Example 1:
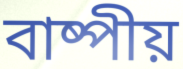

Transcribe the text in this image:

বাষ্পীয়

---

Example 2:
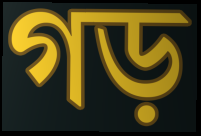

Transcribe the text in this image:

গড়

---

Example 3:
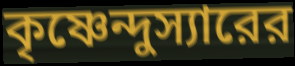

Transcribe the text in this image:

কৃষ্ণেন্দুস্যারের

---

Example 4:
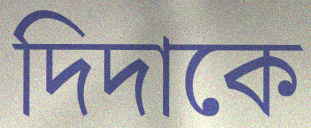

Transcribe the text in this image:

দিদাকে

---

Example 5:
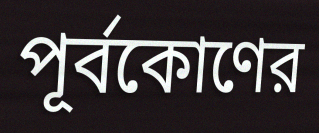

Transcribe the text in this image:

পূর্বকোণের